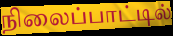
நிலைப்பாட்டில்